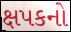
ક્ષપકનો